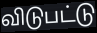
விடுபட்டு